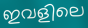
ഇവളിലെ